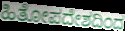
ಹಿತೋಪದೇಶದಿಂದ